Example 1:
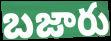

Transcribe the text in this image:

బజారు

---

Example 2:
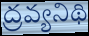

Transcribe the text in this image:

ద్రవ్యనిథి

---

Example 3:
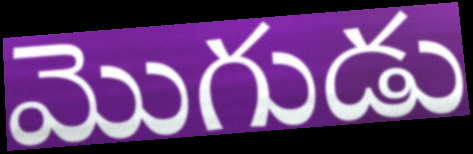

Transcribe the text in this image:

మొగుడు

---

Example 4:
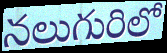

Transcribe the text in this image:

నలుగురిలో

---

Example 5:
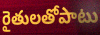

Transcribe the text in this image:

రైతులతోపాటు